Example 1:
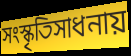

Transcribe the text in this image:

সংস্কৃতিসাধনায়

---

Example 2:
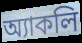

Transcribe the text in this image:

অ্যাকলি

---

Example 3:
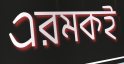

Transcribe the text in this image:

এরমকই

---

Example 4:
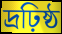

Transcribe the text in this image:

দ্রঢ়িষ্ঠ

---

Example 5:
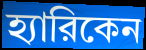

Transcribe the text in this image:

হ্যারিকেন